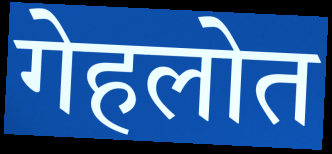
गेहलोत